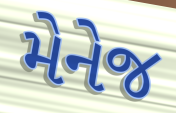
મેનેજ